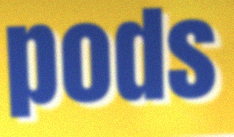
pods